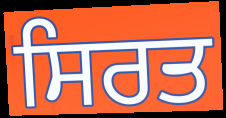
ਸਿਰਤ